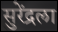
सुरेंद्रला